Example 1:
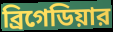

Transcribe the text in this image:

ব্রিগেডিয়ার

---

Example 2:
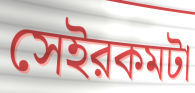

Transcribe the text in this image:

সেইরকমটা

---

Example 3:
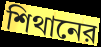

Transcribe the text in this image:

শিথানের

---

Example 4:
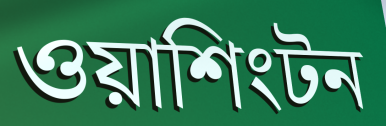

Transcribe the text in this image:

ওয়াশিংটন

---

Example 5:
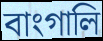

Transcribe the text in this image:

বাংগালি